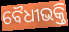
ବୈଧୀଭକ୍ତି